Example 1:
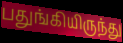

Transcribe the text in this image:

பதுங்கியிருந்து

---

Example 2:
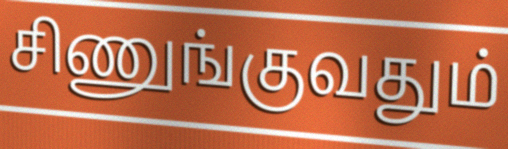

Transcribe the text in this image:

சிணுங்குவதும்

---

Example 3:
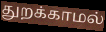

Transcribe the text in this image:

துறக்காமல்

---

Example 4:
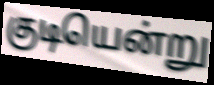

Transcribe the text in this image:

குடியென்று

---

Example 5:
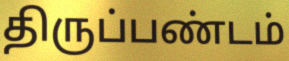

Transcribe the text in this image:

திருப்பண்டம்